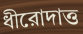
ধীরোদাত্ত